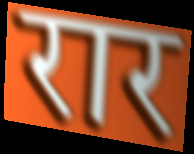
रार